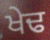
ਖੇਢ